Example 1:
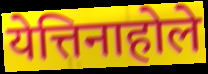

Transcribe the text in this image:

येत्तिनाहोले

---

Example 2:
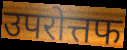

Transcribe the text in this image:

उपरोत्तफ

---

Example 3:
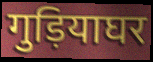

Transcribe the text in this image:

गुड़ियाघर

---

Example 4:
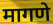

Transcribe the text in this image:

मागणे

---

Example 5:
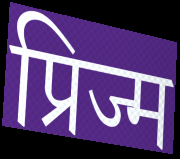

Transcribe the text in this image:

प्रिज्म